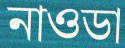
নাওডা